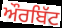
ਔਰਬਿੱਟ